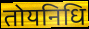
तोयनिधि